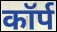
कॉर्प